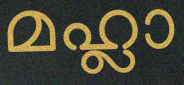
മഹ്ലാ